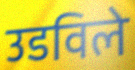
उडविले